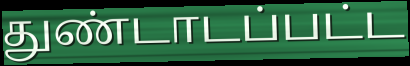
துண்டாடப்பட்ட